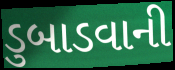
ડુબાડવાની